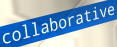
collaborative